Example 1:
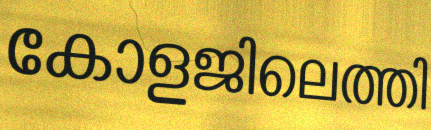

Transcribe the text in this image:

കോളജിലെത്തി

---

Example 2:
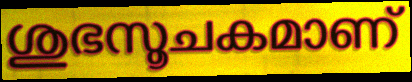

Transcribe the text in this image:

ശുഭസൂചകമാണ്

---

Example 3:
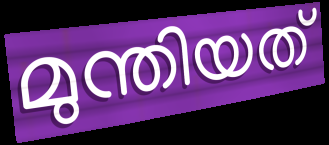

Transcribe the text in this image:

മുന്തിയത്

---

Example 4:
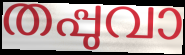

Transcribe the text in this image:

തപ്പുവാ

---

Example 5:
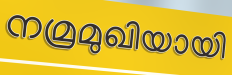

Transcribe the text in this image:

നമ്രമുഖിയായി